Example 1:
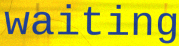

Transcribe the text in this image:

waiting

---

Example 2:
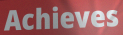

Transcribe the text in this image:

Achieves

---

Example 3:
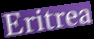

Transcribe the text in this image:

Eritrea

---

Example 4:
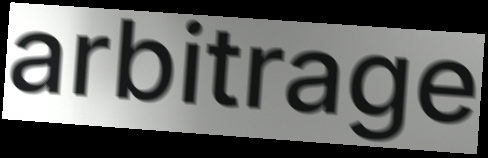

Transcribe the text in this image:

arbitrage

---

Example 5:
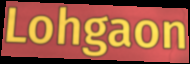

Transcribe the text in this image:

Lohgaon